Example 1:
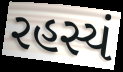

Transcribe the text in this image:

રહસ્યં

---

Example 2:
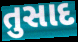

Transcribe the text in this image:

તુસાદ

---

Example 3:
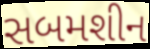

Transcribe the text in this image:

સબમશીન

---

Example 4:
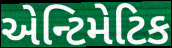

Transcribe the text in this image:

એન્ટિમેટિક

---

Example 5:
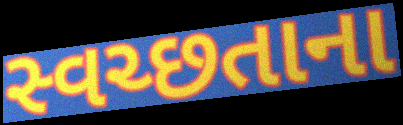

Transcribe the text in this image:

સ્વચ્છતાના